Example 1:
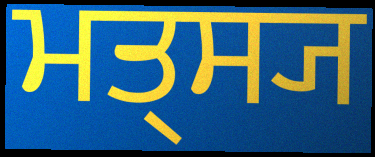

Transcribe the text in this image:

ਮਤ੍ਸ੍ਯ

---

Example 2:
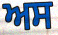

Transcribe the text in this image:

ਅਸ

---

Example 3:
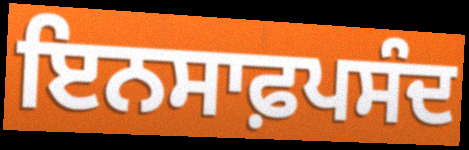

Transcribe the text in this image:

ਇਨਸਾਫ਼ਪਸੰਦ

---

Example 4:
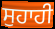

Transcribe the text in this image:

ਸੁਹਾਹੀ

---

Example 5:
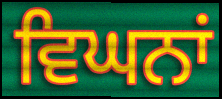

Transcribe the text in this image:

ਵਿਘਨਾਂ